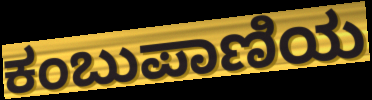
ಕಂಬುಪಾಣಿಯ